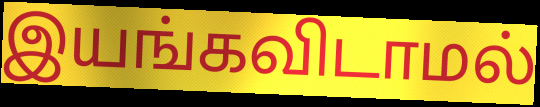
இயங்கவிடாமல்